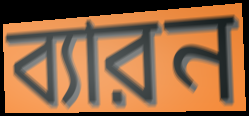
ব্যারন